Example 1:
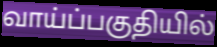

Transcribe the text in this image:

வாய்ப்பகுதியில்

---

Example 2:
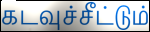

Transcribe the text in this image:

கடவுச்சீட்டும்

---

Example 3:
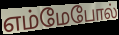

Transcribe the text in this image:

எம்மேபோல்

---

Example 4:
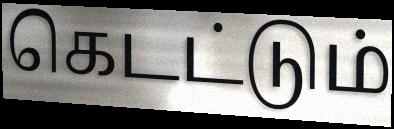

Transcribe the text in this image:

கெடட்டும்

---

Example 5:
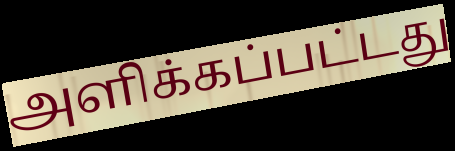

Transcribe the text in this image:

அளிக்கப்பட்டது